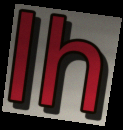
Ih